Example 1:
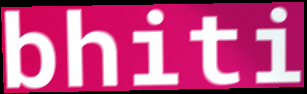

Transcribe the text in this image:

bhiti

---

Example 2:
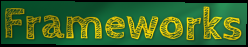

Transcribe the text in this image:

Frameworks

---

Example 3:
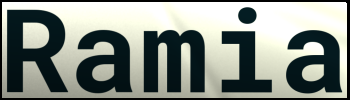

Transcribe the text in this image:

Ramia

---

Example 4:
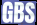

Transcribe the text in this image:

GBS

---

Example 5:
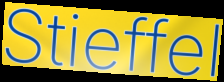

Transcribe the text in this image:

Stieffel